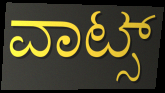
ವಾಟ್ಸ್